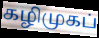
கழிமுகப்